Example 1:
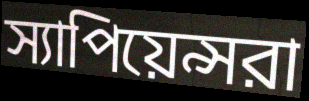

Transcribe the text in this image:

স্যাপিয়েন্সরা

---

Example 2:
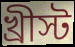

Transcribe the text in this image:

খ্রীস্ট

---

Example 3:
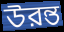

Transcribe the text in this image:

উরন্ত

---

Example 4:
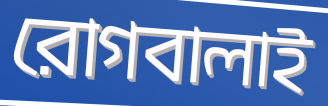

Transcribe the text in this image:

রোগবালাই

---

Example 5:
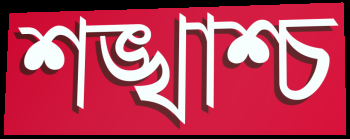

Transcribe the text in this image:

শঙ্খাশ্চ